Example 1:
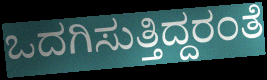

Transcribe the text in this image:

ಒದಗಿಸುತ್ತಿದ್ದರಂತೆ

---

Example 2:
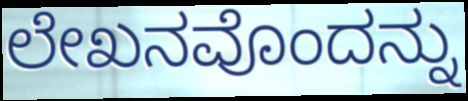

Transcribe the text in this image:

ಲೇಖನವೊಂದನ್ನು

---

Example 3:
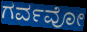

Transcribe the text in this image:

ಗರ್ವವೋ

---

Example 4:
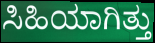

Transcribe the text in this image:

ಸಿಹಿಯಾಗಿತ್ತು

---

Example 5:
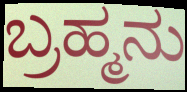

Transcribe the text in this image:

ಬ್ರಹ್ಮನು